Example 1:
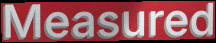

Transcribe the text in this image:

Measured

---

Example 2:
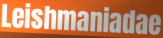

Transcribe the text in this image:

Leishmaniadae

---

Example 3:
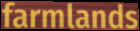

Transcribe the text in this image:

farmlands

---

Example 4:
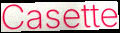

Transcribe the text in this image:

Casette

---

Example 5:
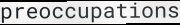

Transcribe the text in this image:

preoccupations